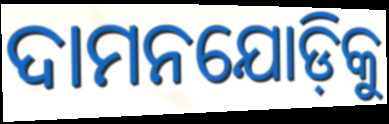
ଦାମନଯୋଡ଼ିକୁ